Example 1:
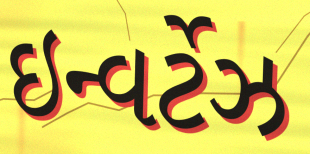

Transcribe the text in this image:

ઇન્વર્ટેઝ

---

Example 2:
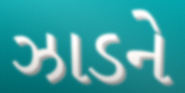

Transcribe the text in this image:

ઝાડને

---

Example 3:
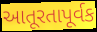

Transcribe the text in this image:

આતૂરતાપૂર્વક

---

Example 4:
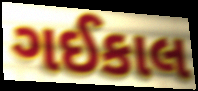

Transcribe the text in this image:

ગઈકાલ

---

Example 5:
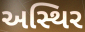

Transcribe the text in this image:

અસ્થિર